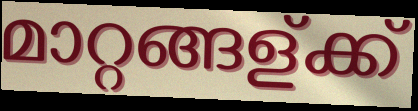
മാറ്റങ്ങള്ക്ക്